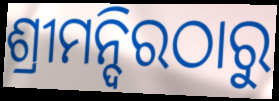
ଶ୍ରୀମନ୍ଦିରଠାରୁ